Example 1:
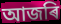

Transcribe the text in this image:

আজৰি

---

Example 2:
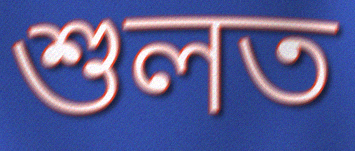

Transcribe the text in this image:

শুলত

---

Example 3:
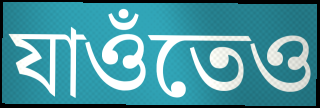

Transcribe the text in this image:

যাওঁতেও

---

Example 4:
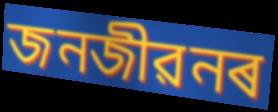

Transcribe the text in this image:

জনজীৱনৰ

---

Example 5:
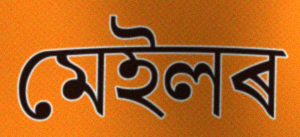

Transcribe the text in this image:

মেইলৰ